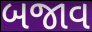
બજાવ